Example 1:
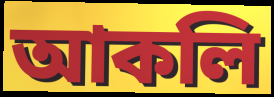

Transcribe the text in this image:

আকলি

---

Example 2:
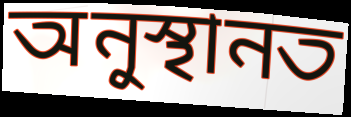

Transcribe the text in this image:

অনুস্থানত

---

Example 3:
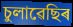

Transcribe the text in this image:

চুলাৱেছিৰ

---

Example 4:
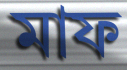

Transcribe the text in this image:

মাফ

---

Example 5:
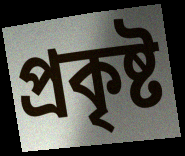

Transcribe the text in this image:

প্ৰকৃষ্ট